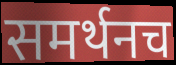
समर्थनच